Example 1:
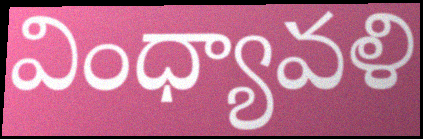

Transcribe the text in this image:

వింధ్యావళి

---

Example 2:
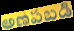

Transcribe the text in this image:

అణపబడి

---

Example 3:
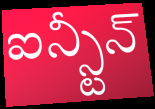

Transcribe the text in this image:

ఐన్స్టీన్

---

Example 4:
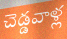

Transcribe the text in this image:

చెడ్డవాళ్ల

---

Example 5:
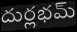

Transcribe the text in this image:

దుర్లభమ్